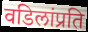
वडिलांप्रति